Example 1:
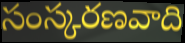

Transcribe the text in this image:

సంస్కరణవాది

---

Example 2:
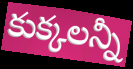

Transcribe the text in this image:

కుక్కలన్నీ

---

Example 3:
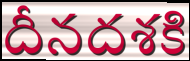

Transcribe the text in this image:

దీనదశకి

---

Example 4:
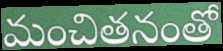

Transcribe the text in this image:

మంచితనంతో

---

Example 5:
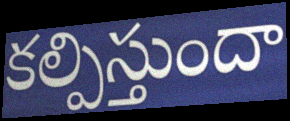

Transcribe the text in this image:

కల్పిస్తుందా